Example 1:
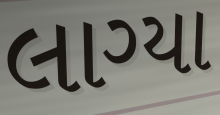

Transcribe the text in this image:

લાગ્યા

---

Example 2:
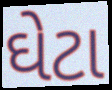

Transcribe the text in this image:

ઘેટા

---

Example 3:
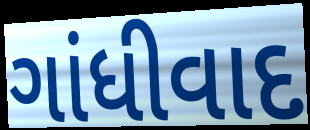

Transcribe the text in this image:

ગાંધીવાદ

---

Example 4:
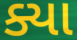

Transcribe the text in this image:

ક્યા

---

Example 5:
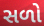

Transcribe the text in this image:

સળો